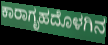
ಕಾರಾಗೃಹದೊಳಗಿನ